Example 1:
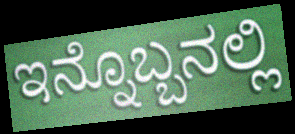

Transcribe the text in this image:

ಇನ್ನೊಬ್ಬನಲ್ಲಿ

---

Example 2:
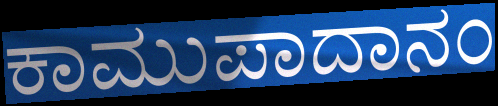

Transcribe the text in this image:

ಕಾಮುಪಾದಾನಂ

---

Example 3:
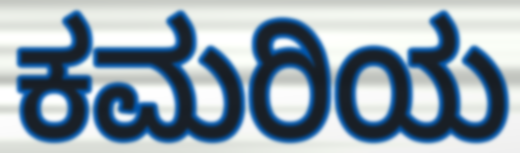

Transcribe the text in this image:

ಕಮರಿಯ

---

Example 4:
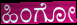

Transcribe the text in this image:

ಹಿಂಗೋ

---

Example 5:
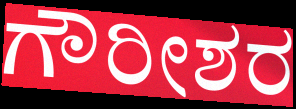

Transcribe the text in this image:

ಗೌರೀಶರ